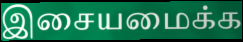
இசையமைக்க